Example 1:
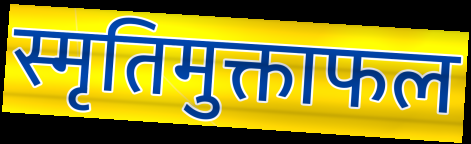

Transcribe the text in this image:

स्मृतिमुक्ताफल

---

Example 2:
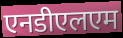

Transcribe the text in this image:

एनडीएलएम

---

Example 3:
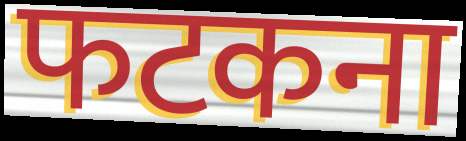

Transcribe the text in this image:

फटकना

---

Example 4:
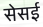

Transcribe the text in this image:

सेसई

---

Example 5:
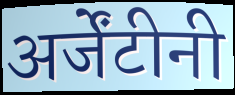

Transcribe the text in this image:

अर्जेंटीनी